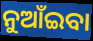
ନୁଆଁଇବା